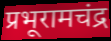
प्रभूरामचंद्र